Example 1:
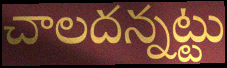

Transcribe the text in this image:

చాలదన్నట్టు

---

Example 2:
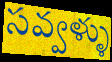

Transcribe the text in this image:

సవ్వళ్ళు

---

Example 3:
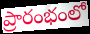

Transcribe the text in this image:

ప్రారంభంలో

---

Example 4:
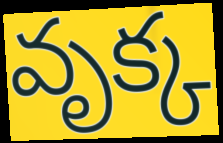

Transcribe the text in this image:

వృక్క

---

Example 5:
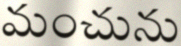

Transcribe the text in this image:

మంచును